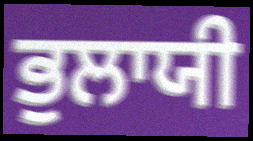
ਭੁਲਾਯੀ